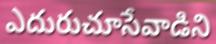
ఎదురుచూసేవాడిని